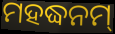
ମହଦ୍ଧନମ୍